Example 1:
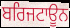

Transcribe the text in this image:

ਬਰਿਜਟਾਊਨ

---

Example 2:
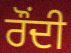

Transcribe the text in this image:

ਰੌਂਦੀ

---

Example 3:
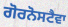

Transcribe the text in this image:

ਗੋਰਨੋਸਟੈਵਾ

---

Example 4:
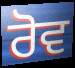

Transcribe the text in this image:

ਰੋਵ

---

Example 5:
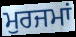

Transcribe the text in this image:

ਮੁਰਜਮਾਂ